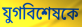
যুগবিশেষকে